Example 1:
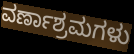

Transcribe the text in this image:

ವರ್ಣಾಶ್ರಮಗಳು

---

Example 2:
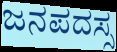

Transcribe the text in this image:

ಜನಪದಸ್ಸ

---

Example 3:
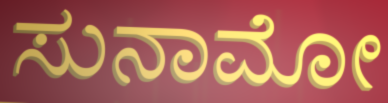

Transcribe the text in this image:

ಸುನಾಮೋ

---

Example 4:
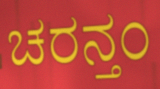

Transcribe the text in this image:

ಚರನ್ತಂ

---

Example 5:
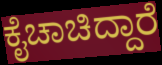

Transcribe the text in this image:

ಕೈಚಾಚಿದ್ದಾರೆ